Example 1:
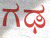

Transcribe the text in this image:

ಗಢ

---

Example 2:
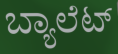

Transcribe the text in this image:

ಬ್ಯಾಲೆಟ್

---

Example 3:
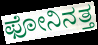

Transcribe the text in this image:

ಫೋನಿನತ್ತ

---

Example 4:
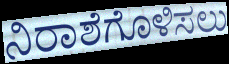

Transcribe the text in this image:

ನಿರಾಶೆಗೊಳಿಸಲು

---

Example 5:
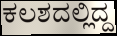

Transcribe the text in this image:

ಕಲಶದಲ್ಲಿದ್ದ